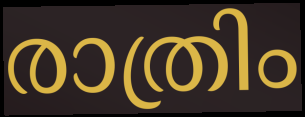
രാത്രിം